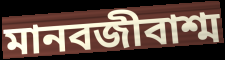
মানবজীবাশ্ম